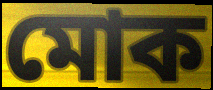
মোক